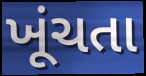
ખૂંચતા